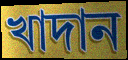
খাদান